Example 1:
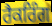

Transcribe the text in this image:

ਰੈਕਰਿੰਗ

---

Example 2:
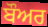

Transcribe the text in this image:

ਬੌਅਰ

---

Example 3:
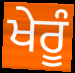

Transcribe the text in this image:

ਖੇਰੂੰ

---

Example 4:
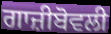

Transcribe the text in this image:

ਗਾਜ਼ੀਬੋਵਲੀ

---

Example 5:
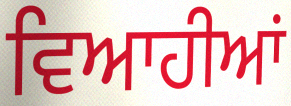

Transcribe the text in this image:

ਵਿਆਹੀਆਂ